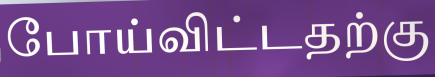
போய்விட்டதற்கு